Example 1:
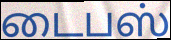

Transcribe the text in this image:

டைபஸ்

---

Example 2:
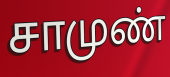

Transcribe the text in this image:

சாமுண்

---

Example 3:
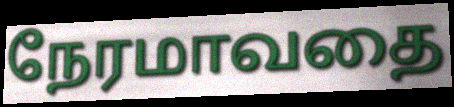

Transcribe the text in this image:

நேரமாவதை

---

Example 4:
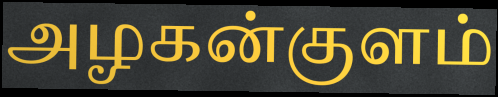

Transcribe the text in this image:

அழகன்குளம்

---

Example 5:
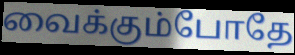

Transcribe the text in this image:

வைக்கும்போதே